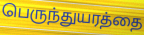
பெருந்துயரத்தை